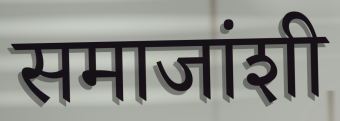
समाजांशी